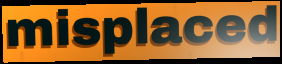
misplaced